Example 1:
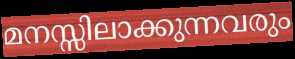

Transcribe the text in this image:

മനസ്സിലാക്കുന്നവരും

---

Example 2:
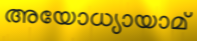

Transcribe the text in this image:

അയോധ്യായാമ്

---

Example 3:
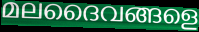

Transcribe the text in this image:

മലദൈവങ്ങളെ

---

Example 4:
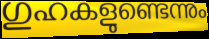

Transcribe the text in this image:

ഗുഹകളുണ്ടെന്നും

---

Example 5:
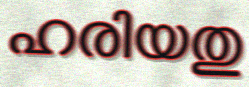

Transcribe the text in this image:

ഹരിയതു